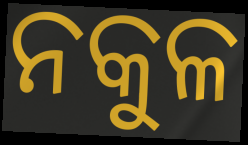
ନକୁଳ